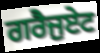
ਗਰੈਜੁਏਟ